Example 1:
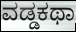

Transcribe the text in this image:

ವಡ್ಡಕಥಾ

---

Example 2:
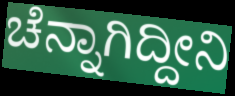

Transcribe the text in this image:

ಚೆನ್ನಾಗಿದ್ದೀನಿ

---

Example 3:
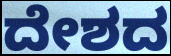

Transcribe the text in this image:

ದೇಶದ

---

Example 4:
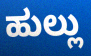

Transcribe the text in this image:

ಹುಲ್ಲು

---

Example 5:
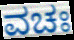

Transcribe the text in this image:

ವಚಃ